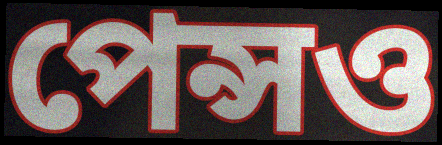
পেন্সও